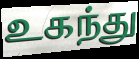
உகந்து